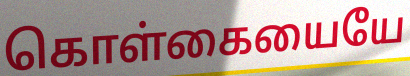
கொள்கையையே